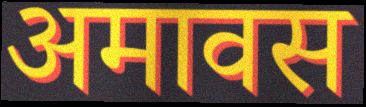
अमावस